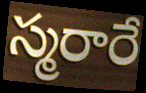
స్మరారే